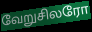
வேறுசிலரோ